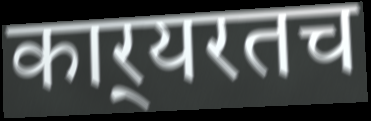
कार्यरतच